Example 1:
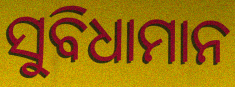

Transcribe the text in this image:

ସୁବିଧାମାନ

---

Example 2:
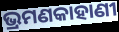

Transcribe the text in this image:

ଭ୍ରମଣକାହାଣୀ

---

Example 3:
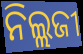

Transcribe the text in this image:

ନିଲ୍ଲଜୀ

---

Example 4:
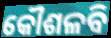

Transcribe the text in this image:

କୌଶଳବି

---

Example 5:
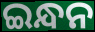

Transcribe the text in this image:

ଇନ୍ଧନ